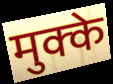
मुक्‍के